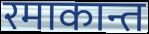
रमाकान्त